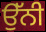
ਉੱਨੀ